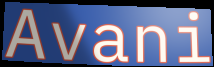
Avani